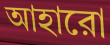
আহারো